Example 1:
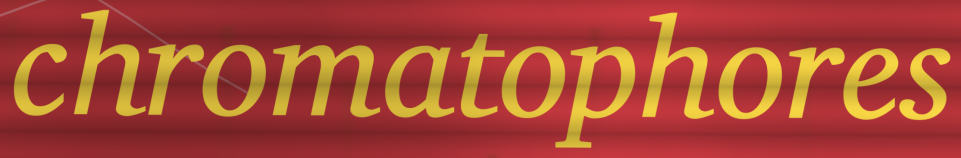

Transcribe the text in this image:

chromatophores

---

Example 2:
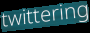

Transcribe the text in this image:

twittering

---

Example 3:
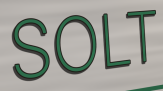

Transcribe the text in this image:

SOLT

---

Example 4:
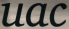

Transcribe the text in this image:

uac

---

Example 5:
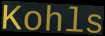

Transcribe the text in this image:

Kohls